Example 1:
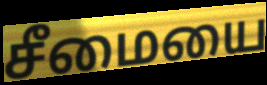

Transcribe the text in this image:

சீமையை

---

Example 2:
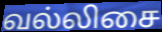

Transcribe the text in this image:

வல்லிசை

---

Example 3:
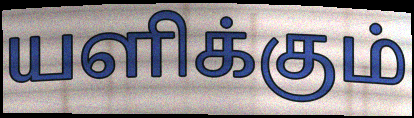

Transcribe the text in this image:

யளிக்கும்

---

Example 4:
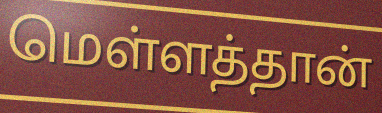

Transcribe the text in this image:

மெள்ளத்தான்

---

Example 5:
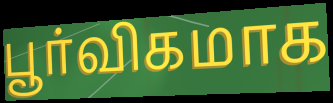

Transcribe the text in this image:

பூர்விகமாக